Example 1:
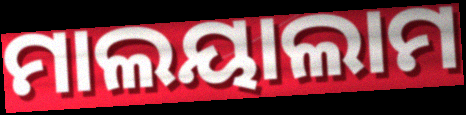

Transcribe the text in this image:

ମାଲୟାଲାମ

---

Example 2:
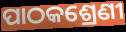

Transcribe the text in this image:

ପାଠକଶ୍ରେଣୀ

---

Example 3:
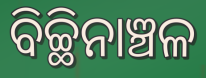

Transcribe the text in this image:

ବିଚ୍ଛିନାଞ୍ଚଳ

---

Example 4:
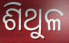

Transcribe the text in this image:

ଶିଥୁଳ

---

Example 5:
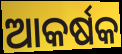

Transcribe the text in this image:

ଆକର୍ଷକ